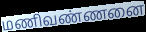
மணிவண்ணனை